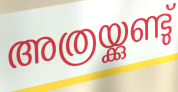
അത്രയ്ക്കുണ്ടു്